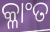
କ୍ଳାଂତ